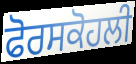
ਫੋਰਸਕੋਹਲੀ